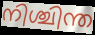
നിശ്ചിന്ത